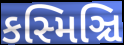
કસ્મિઞ્ચિ